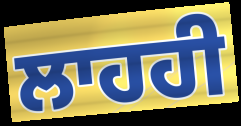
ਲਾਹਹੀ